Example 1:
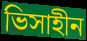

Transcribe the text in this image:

ভিসাহীন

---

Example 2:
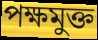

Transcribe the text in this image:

পক্ষমুক্ত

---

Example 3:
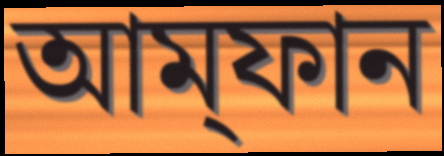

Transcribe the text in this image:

আম্‌ফান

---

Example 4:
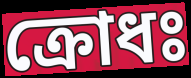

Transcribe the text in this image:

ক্রোধঃ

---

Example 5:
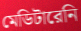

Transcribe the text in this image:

মেডিটারেনি